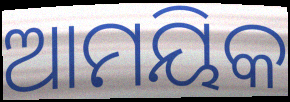
ଆମୟିକ